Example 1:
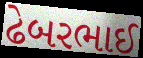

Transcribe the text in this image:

ઢેબરભાઈ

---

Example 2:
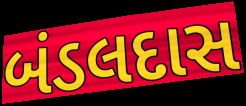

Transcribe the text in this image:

બંડલદાસ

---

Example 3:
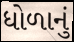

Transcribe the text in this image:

ધોળાનું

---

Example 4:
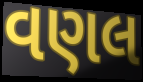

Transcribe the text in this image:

વણલ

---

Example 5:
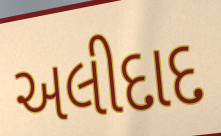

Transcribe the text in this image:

અલીદાદ